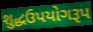
શુદ્ધઉપયોગરૂપ